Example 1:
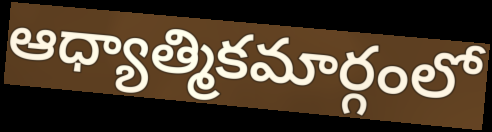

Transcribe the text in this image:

ఆధ్యాత్మికమార్గంలో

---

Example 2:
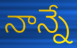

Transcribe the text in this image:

నాన్నే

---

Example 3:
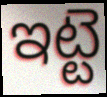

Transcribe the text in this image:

ఇట్టె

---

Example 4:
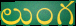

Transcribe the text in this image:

లుంగ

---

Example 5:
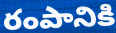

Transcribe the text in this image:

రంపానికి